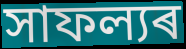
সাফল্যৰ